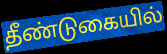
தீண்டுகையில்